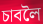
চাবলৈ